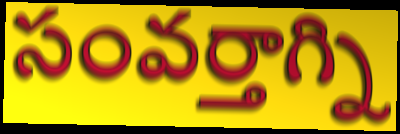
సంవర్తాగ్ని